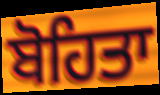
ਬੋਹਿਤਾ